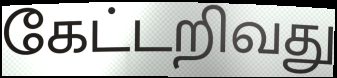
கேட்டறிவது